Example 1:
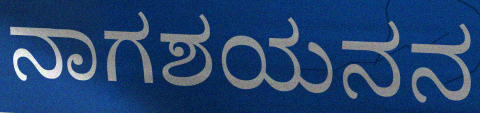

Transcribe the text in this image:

ನಾಗಶಯನನ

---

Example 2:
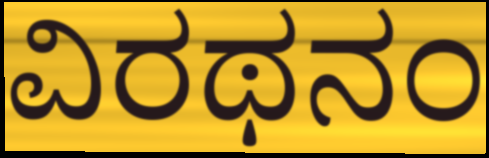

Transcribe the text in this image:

ವಿರಥನಂ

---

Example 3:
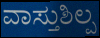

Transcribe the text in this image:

ವಾಸ್ತುಶಿಲ್ಪ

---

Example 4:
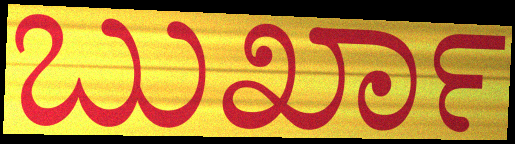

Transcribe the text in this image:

ಬುರ್ಖಾ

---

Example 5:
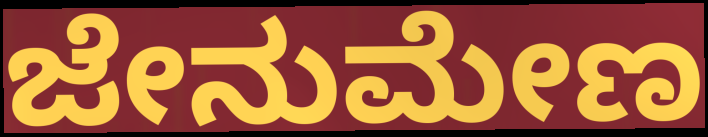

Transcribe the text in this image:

ಜೇನುಮೇಣ